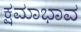
ಕ್ಷಮಾಭಾವ